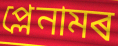
প্লেনামৰ